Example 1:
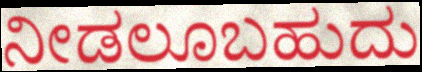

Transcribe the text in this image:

ನೀಡಲೂಬಹುದು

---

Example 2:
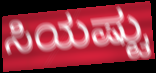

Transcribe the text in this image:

ಸಿಯಷ್ಟು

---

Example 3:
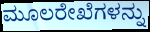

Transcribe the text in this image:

ಮೂಲರೇಖೆಗಳನ್ನು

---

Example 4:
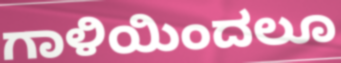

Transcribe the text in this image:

ಗಾಳಿಯಿಂದಲೂ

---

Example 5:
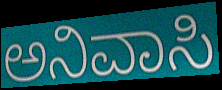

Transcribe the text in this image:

ಅನಿವಾಸಿ